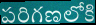
పరిగణలోకి